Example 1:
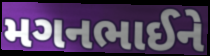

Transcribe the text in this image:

મગનભાઈને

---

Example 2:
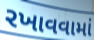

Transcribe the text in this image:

રખાવવામાં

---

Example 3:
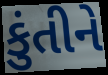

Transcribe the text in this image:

કુંતીને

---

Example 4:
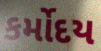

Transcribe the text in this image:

કર્મોદય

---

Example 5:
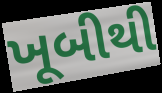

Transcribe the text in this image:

ખૂબીથી